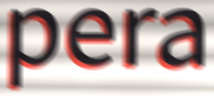
pera